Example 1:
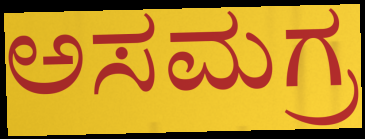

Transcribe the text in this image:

ಅಸಮಗ್ರ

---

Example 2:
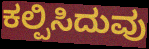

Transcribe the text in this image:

ಕಲ್ಪಿಸಿದುವು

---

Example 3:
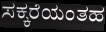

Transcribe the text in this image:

ಸಕ್ಕರೆಯಂತಹ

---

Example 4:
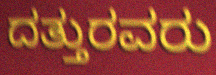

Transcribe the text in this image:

ದತ್ತುರವರು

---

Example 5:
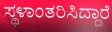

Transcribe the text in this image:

ಸ್ಥಳಾಂತರಿಸಿದ್ದಾರೆ